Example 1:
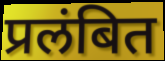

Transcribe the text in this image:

प्रलंबित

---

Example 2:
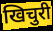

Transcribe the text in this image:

खिचुरी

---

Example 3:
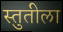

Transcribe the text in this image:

स्तुतीला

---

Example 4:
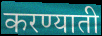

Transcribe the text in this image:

करण्याती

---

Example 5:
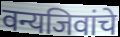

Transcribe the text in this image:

वन्यजिवांचे